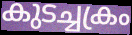
കുടച്ചക്രം